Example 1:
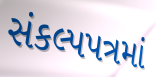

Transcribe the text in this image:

સંકલ્પપત્રમાં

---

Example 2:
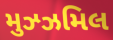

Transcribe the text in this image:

મુઝ્ઝમિલ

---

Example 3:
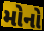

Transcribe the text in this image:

મોનો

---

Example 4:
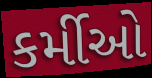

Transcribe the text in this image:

કર્મીઓ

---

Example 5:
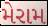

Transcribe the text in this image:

મેરામ